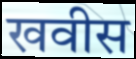
खवीस